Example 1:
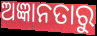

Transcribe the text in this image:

ଅଜ୍ଞାନତାରୁ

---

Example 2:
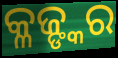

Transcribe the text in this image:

କ୍ଳଜ୍ଙ୍କର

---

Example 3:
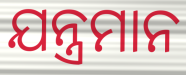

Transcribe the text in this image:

ଯନ୍ତ୍ରମାନ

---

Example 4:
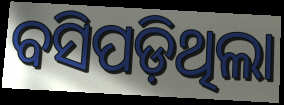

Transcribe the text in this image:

ବସିପଡ଼ିଥିଲା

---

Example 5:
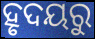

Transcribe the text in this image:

ହୃଦୟରୁ